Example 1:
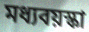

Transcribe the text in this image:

মধ্যবয়স্কা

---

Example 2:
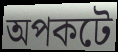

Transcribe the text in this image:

অপকটে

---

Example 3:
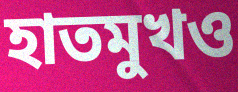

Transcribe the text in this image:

হাতমুখও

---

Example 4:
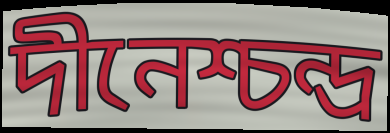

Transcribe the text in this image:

দীনেশ্চন্দ্র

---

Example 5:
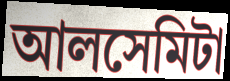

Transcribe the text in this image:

আলসেমিটা